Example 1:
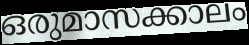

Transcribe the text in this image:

ഒരുമാസക്കാലം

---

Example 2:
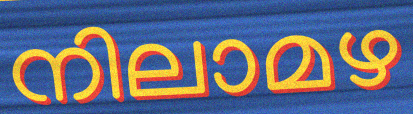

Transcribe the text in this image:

നിലാമഴ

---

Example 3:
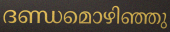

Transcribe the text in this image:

ദണ്ഡമൊഴിഞ്ഞു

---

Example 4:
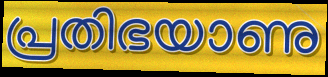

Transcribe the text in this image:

പ്രതിഭയാണു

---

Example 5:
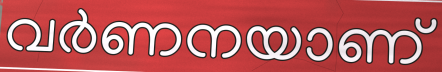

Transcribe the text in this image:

വർണനയാണ്